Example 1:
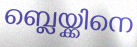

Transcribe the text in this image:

ബ്ലെയ്ക്കിനെ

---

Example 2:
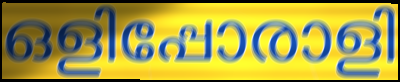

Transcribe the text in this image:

ഒളിപ്പോരാളി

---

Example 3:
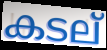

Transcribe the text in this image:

കടല്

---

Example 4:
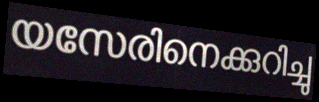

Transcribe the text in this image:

യസേരിനെക്കുറിച്ചു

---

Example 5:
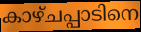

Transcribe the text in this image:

കാഴ്ചപ്പാടിനെ